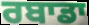
ਰਬਾਡਾ